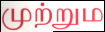
முற்றும